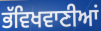
ਭੱਵਿਖਵਾਣੀਆਂ